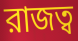
রাজত্ব